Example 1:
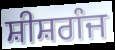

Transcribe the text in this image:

ਸ਼ੀਸ਼ਗੰਜ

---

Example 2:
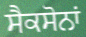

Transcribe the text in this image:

ਸੈਕਸੋਨਾਂ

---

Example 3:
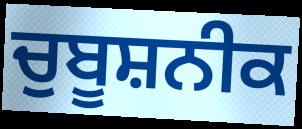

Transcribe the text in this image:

ਚੁਬੂਸ਼ਨੀਕ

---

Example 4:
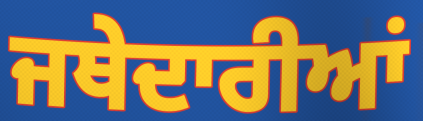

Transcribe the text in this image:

ਜਥੇਦਾਰੀਆਂ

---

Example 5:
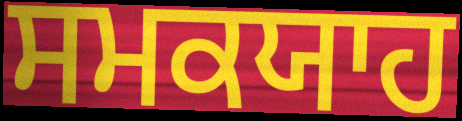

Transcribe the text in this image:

ਸਮਕਯਾਹ